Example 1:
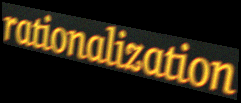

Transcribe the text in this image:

rationalization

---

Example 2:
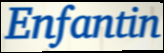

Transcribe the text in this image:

Enfantin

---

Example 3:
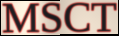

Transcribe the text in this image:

MSCT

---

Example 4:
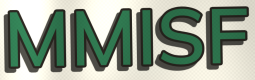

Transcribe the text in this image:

MMISF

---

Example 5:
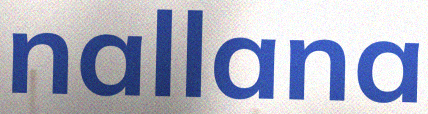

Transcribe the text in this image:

nallana